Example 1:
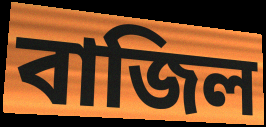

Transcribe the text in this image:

বাজিল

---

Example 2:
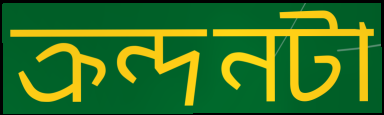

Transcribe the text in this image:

ক্রন্দনটা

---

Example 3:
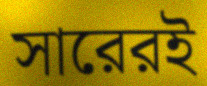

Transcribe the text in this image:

সারেরই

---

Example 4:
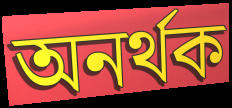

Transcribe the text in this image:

অনর্থক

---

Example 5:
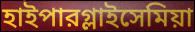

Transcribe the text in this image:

হাইপারগ্লাইসেমিয়া